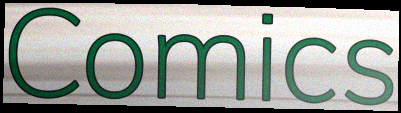
Comics